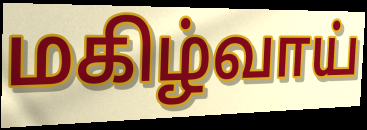
மகிழ்வாய்